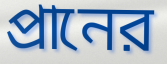
প্রানের